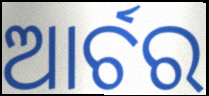
ଆର୍ଚର